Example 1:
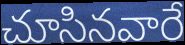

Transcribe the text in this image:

చూసినవారే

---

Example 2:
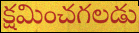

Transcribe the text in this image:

క్షమించగలడు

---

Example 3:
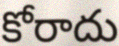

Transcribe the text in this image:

కోరాదు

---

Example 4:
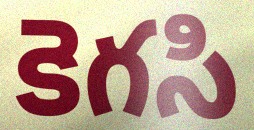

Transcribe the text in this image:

కెగసి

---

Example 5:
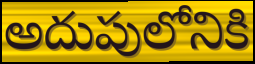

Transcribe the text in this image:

అదుపులోనికి